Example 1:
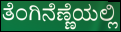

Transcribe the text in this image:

ತೆಂಗಿನೆಣ್ಣೆಯಲ್ಲಿ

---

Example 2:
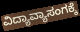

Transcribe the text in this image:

ವಿದ್ಯಾವ್ಯಾಸಂಗಕ್ಕೆ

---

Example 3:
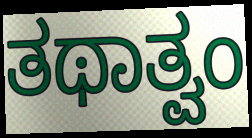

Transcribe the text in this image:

ತಥಾತ್ವಂ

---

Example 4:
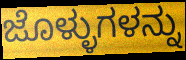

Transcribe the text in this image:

ಜೊಳ್ಳುಗಳನ್ನು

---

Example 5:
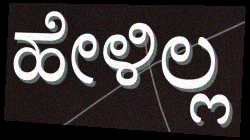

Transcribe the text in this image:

ಹೇಳಿಲ್ಲ